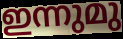
ഇന്നുമു